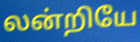
லன்றியே